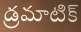
డ్రమాటిక్